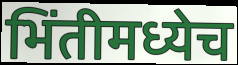
भिंतीमध्येच